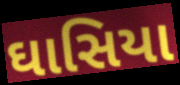
ઘાસિયા